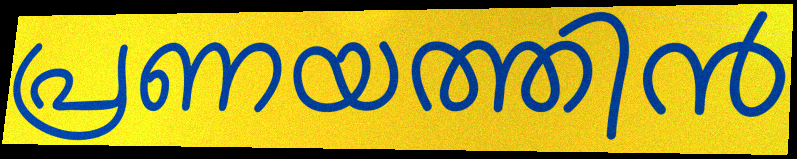
പ്രണയത്തിൻ